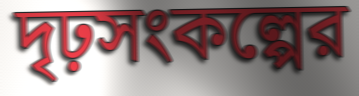
দৃঢ়সংকল্পের